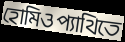
হোমিওপ্যাথিতে